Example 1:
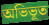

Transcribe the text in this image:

অভিভূত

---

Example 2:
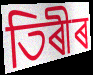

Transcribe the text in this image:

তিৰীৰ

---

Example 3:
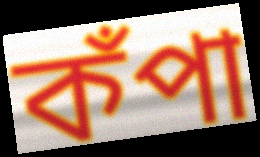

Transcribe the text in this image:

কঁপা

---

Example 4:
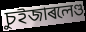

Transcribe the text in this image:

চুইজাৰলেণ্ড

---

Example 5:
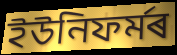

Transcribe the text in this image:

ইউনিফৰ্মৰ